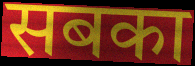
सबका